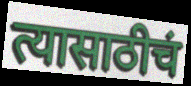
त्यासाठीचं